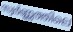
സ്വർണ്ണത്തിലെ